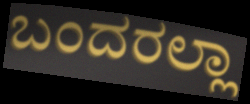
ಬಂದರಲ್ಲಾ